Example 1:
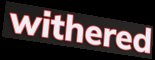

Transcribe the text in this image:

withered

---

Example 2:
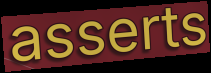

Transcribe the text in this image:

asserts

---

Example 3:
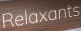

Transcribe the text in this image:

Relaxants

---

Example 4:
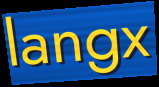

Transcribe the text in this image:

langx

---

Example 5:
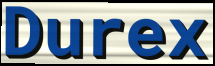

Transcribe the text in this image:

Durex